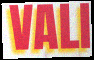
VALI